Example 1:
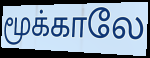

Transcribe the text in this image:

மூக்காலே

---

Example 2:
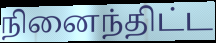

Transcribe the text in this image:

நினைந்திட்ட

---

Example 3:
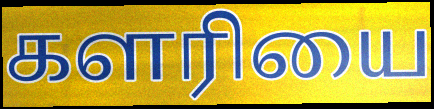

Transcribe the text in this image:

களரியை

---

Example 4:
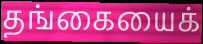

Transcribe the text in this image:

தங்கையைக்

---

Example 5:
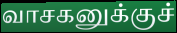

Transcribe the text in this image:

வாசகனுக்குச்